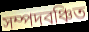
সম্পদবঞ্চিত